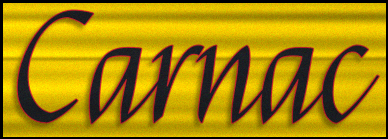
Carnac